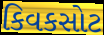
કિવકસોટ